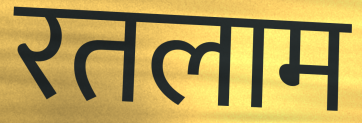
रतलाम